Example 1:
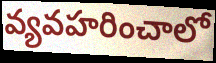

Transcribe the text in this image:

వ్యవహరించాలో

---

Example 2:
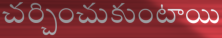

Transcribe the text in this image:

చర్చించుకుంటాయి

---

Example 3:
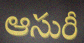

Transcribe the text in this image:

ఆసురీ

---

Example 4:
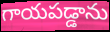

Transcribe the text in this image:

గాయపడ్డాను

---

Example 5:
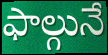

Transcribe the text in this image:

ఫాల్గునే